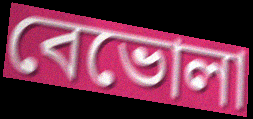
বেভোলা